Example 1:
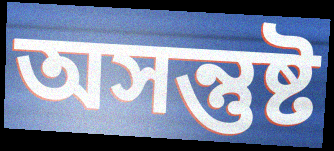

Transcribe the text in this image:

অসন্তুষ্ট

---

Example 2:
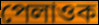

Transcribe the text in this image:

পেলাওক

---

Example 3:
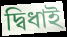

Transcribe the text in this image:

দ্বিধাই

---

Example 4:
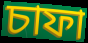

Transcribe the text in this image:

চাফা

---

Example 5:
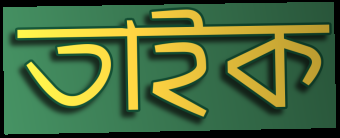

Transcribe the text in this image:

তাইক